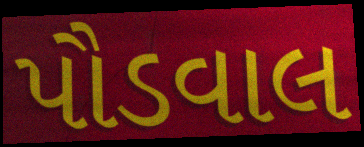
પૌડવાલ